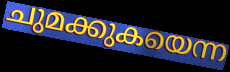
ചുമക്കുകയെന്ന